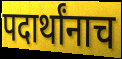
पदार्थांनाच